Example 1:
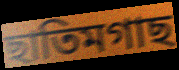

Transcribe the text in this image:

ছাতিমগাছ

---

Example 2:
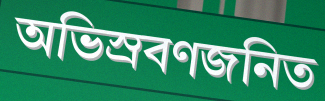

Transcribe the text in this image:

অভিস্রবণজনিত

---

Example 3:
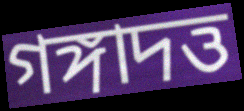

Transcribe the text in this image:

গঙ্গাদত্ত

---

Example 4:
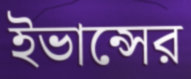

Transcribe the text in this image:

ইভান্সের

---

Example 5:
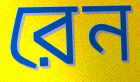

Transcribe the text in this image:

রেন